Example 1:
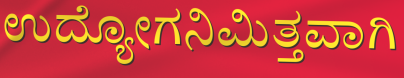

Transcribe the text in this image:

ಉದ್ಯೋಗನಿಮಿತ್ತವಾಗಿ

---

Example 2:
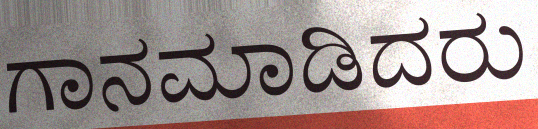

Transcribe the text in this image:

ಗಾನಮಾಡಿದರು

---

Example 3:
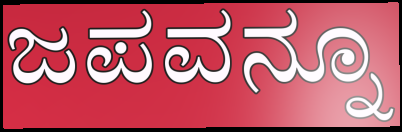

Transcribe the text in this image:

ಜಪವನ್ನೂ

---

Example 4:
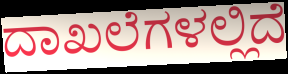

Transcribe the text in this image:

ದಾಖಲೆಗಳಲ್ಲಿದೆ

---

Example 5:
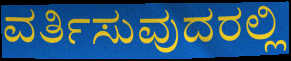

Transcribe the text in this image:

ವರ್ತಿಸುವುದರಲ್ಲಿ